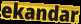
ekandar